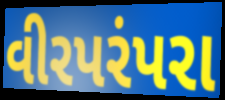
વીરપરંપરા